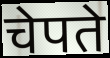
चेपते